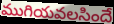
ముగియవలసిందే